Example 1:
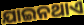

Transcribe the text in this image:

ଯାଇନଥାଏ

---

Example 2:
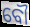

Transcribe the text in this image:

ବୌ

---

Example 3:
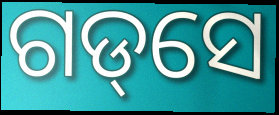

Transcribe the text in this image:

ଗଡ୍‌ସେ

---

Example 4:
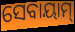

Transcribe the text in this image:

ସେବାୟାମ୍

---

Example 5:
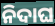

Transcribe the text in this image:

ନିଦାଘ